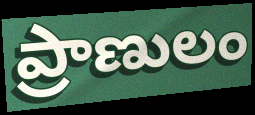
ప్రాణులం